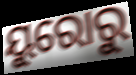
ୟୁରୋରୁ